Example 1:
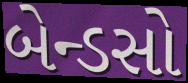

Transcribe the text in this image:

બેન્ડસો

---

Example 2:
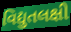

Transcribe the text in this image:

વિદ્યુતલક્ષી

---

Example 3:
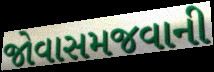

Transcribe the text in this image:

જોવાસમજવાની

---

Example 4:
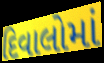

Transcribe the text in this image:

દિવાલોમાં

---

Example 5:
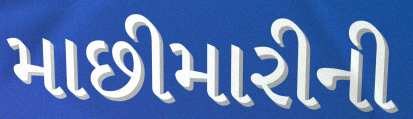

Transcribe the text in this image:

માછીમારીની